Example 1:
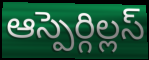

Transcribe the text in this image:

ఆస్పెర్గిల్లస్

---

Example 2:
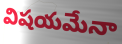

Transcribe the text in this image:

విషయమేనా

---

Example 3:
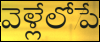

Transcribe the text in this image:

వెళ్లేలోపే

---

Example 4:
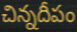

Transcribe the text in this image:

చిన్నదీపం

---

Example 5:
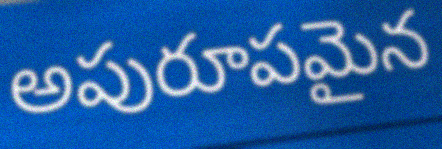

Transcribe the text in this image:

అపురూపమైన